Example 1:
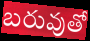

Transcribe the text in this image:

బరువుతో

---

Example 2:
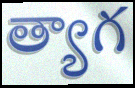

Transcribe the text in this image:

త్యాగ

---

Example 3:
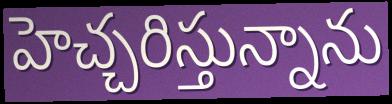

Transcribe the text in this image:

హెచ్చరిస్తున్నాను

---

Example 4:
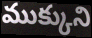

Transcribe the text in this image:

ముక్కుని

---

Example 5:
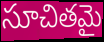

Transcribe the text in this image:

సూచితమై